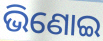
ଭିଣୋଇ